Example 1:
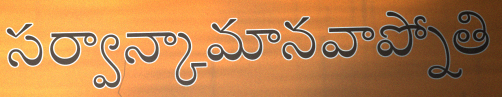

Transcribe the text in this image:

సర్వాన్కామానవాప్నోతి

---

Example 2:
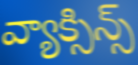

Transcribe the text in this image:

వ్యాక్సిన్స్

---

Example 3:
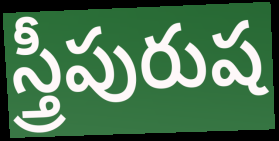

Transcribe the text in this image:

స్త్రీపురుష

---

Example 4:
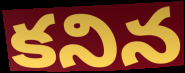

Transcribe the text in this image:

కనిన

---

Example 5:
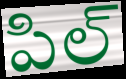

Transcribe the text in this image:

పిల్